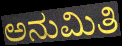
ಅನುಮಿತಿ